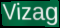
Vizag